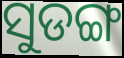
ସୁଡଙ୍ଗ